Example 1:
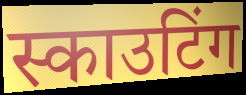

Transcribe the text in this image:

स्काउटिंग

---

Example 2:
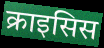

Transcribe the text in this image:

क्राइसिस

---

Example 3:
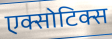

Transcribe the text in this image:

एक्सोटिक्स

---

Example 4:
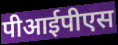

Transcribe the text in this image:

पीआईपीएस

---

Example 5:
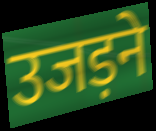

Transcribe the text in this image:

उजड़ने